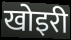
खोइरी